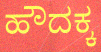
ಹೌದಕ್ಕ